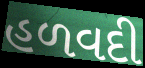
હળવદી